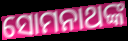
ସୋମନାଥଙ୍କ